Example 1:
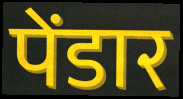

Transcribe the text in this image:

पेंडार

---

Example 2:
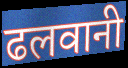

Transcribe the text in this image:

ढलवानी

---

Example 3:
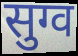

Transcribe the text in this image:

सुग्व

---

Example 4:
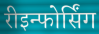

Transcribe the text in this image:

रीइन्फोर्सिंग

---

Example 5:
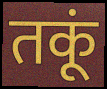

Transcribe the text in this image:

तकूं